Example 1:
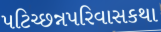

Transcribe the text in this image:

પટિચ્છન્નપરિવાસકથા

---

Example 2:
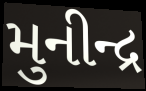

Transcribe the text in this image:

મુનીન્દ્ર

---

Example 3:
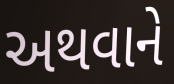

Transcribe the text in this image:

અથવાને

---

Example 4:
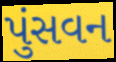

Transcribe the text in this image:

પુંસવન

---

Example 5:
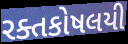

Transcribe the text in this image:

રક્તકોષલયી